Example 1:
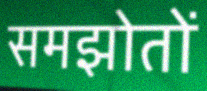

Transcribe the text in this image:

समझोतों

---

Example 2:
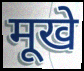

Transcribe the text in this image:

मूखे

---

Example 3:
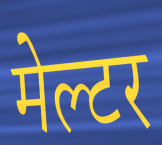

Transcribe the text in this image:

मेल्टर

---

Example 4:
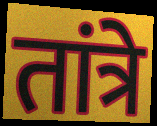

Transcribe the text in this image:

तांत्रे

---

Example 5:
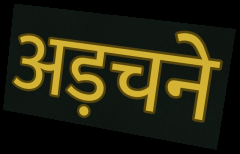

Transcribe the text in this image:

अड़चने